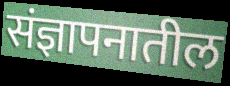
संज्ञापनातील